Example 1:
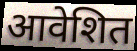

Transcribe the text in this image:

आवेशित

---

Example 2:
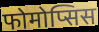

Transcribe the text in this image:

फोमोप्सिस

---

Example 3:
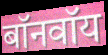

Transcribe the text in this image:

बॉनवॉय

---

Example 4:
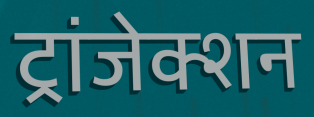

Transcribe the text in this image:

ट्रांजेक्शन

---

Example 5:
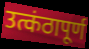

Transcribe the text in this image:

उत्कंठापूर्ण